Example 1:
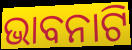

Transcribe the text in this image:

ଭାବନାଟି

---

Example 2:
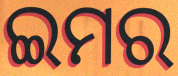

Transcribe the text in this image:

ଇମର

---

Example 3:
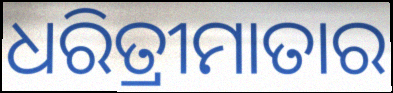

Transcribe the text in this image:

ଧରିତ୍ରୀମାତାର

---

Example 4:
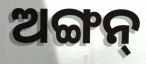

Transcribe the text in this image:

ଅଙ୍ଗନ୍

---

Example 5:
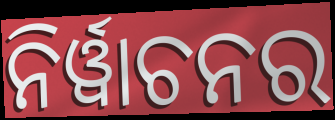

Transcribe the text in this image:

ନିର୍ୱାଚନର